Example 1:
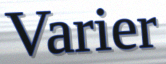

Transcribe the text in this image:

Varier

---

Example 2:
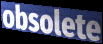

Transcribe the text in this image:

obsolete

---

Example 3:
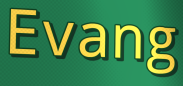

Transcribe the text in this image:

Evang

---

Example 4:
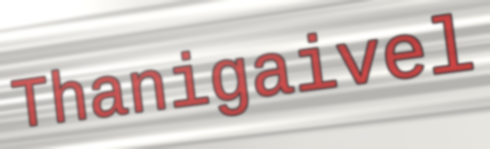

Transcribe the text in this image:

Thanigaivel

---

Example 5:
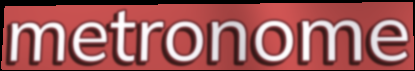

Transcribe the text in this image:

metronome